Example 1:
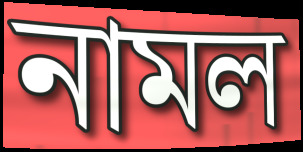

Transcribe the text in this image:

নামল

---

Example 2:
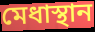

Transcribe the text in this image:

মেধাস্থান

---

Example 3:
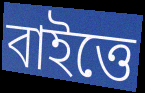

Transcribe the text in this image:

বাইত্তে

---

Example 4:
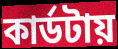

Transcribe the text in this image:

কার্ডটায়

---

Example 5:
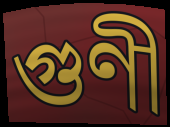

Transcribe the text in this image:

গুণী